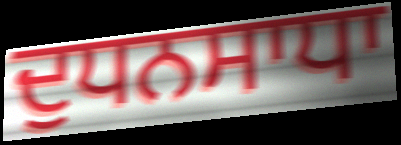
ਦੁਧਨਸਾਧਾ